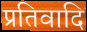
प्रतिवादि